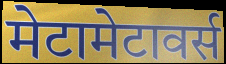
मेटामेटावर्स